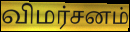
விமர்சனம்